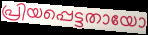
പ്രിയപ്പെട്ടതായോ